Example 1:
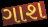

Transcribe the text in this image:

ગાશ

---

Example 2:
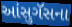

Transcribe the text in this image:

આંસુગૅસના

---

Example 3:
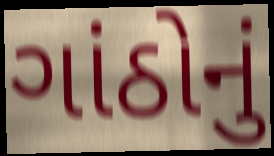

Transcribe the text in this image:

ગાંઠોનું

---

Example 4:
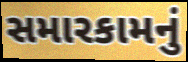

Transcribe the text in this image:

સમારકામનું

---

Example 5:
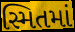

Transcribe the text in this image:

સ્મિતમાં